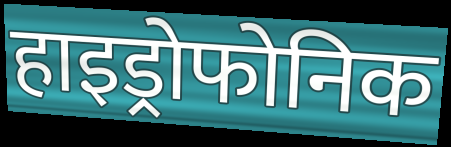
हाइड्रोफोनिक